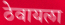
ठेवायला